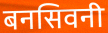
बनसिवनी